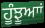
ਹੂੰਝੂਆਾਂ